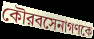
কৌরবসেনাগণকে